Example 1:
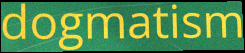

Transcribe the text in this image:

dogmatism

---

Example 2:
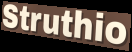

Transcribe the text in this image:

Struthio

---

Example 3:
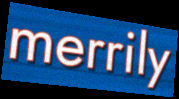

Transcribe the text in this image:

merrily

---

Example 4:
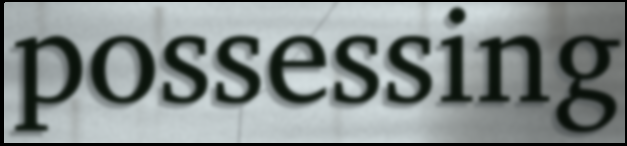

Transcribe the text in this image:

possessing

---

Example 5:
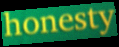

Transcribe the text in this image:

honesty